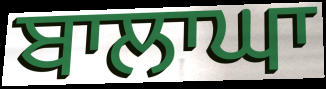
ਬਾਲਾਘਾ